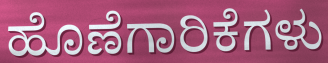
ಹೊಣೆಗಾರಿಕೆಗಳು